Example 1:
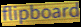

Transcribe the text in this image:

flipboard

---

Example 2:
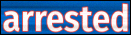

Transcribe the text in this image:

arrested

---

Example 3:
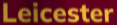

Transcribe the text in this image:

Leicester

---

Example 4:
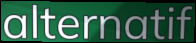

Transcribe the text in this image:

alternatif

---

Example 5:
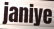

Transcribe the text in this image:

janiye